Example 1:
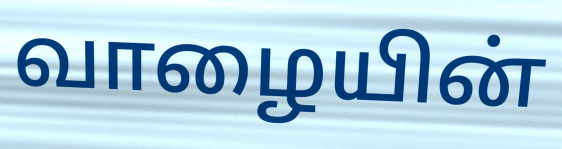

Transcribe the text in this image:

வாழையின்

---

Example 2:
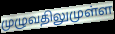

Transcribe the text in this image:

முழுவதிலுமுள்ள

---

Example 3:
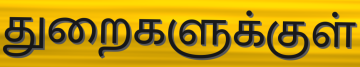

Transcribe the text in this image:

துறைகளுக்குள்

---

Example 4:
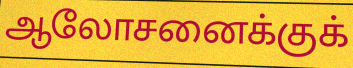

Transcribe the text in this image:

ஆலோசனைக்குக்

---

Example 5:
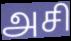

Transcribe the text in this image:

அசி